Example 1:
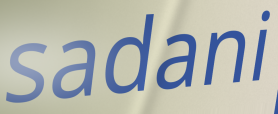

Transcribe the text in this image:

sadani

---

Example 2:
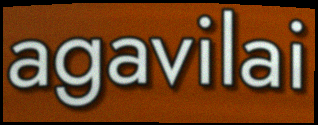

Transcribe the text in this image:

agavilai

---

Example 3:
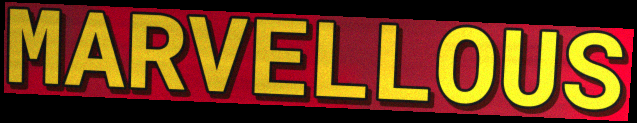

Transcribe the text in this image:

MARVELLOUS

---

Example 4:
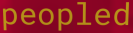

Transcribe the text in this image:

peopled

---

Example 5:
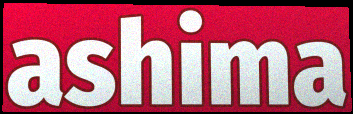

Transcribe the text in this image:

ashima